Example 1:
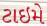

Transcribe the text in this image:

ટાઇમે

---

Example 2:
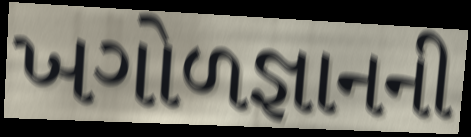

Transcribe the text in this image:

ખગોળજ્ઞાનની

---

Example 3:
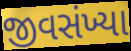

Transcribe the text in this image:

જીવસંખ્યા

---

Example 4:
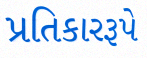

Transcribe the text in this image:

પ્રતિકારરૂપે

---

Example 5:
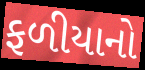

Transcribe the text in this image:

ફળીયાનો